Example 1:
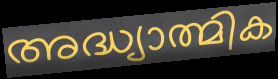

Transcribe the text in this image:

അദ്ധ്യാത്മിക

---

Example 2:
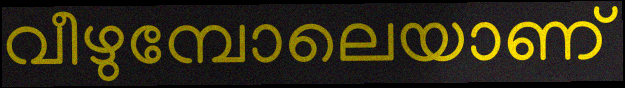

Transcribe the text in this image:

വീഴുമ്പോലെയാണ്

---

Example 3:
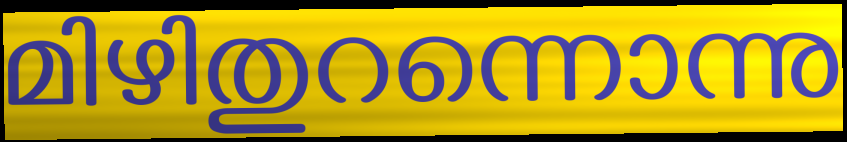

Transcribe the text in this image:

മിഴിതുറന്നൊന്നു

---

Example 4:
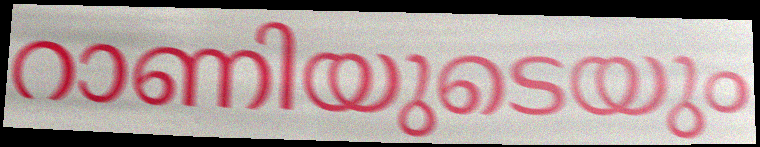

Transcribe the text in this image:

റാണിയുടെയും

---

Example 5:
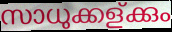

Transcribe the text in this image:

സാധുക്കള്ക്കും